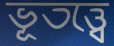
ভূতত্ত্বে